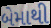
બેમાથી